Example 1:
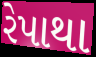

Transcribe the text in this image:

રેપાથા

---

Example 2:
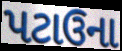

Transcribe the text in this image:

પટાઉના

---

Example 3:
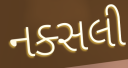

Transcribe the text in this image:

નક્સલી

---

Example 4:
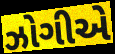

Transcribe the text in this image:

ઝોગીએ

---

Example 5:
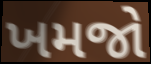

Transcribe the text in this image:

ખમજો